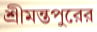
শ্রীমন্তপুরের